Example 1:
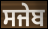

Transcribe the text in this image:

ਸਜੇਬ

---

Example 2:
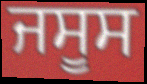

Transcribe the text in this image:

ਜਸੂਸ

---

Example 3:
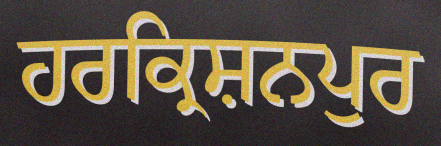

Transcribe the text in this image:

ਹਰਕ੍ਰਿਸ਼ਨਪੁਰ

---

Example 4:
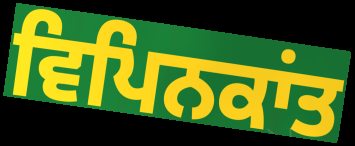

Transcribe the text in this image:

ਵਿਪਿਨਕਾਂਤ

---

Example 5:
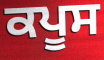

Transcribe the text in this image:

ਕਪੂਸ